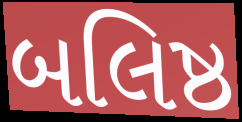
બલિષ્ઠ